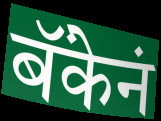
बॅंकेनं